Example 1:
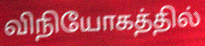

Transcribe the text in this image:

விநியோகத்தில்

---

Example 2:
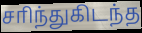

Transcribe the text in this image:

சரிந்துகிடந்த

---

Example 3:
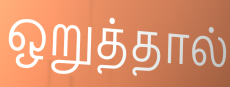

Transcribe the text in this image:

ஒறுத்தால்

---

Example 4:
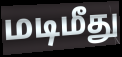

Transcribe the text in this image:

மடிமீது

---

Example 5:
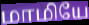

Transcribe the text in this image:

மாமியே